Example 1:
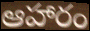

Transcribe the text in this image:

ఆహారం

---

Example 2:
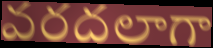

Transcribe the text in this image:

వరదలాగా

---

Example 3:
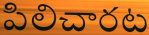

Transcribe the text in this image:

పిలిచారట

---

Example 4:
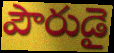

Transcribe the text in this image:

పౌరుడై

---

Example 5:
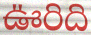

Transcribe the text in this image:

ఊరిది